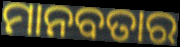
ମାନବତାର